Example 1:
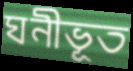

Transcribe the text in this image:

ঘনীভূত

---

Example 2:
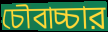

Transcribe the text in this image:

চৌবাচ্চার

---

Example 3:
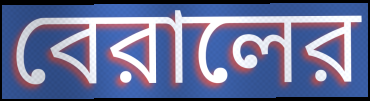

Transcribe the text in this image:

বেরালের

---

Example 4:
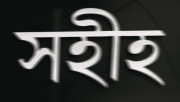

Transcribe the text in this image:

সহীহ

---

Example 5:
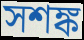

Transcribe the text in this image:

সশঙ্ক